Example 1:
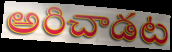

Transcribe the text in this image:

అరిచాడట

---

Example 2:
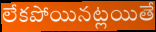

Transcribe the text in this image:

లేకపోయినట్లయితే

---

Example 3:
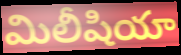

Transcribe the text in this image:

మిలీషియా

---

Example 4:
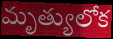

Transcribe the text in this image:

మృత్యులోక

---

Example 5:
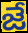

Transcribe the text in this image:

జే